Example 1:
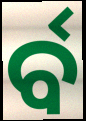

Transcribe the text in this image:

ର୍ବ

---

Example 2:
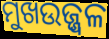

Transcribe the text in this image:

ମୁଖଉଜ୍ଜ୍ୱଳ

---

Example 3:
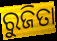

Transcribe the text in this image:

ରୁଜିତା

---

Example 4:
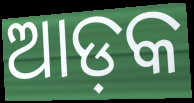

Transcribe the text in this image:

ଆଡ଼କ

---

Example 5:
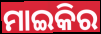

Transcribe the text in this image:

ମାଇକିର